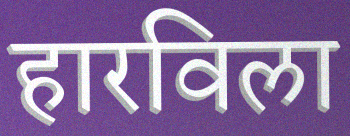
हारविला